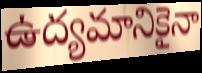
ఉద్యమానికైనా